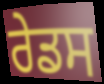
ਰੇਡਸ